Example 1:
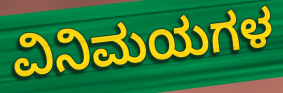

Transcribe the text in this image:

ವಿನಿಮಯಗಳ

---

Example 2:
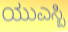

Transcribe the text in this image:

ಯುಎಸ್ಬಿ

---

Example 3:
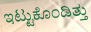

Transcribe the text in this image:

ಇಟ್ಟುಕೊಂಡಿತ್ತು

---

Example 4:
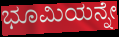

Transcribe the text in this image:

ಭೂಮಿಯನ್ನೇ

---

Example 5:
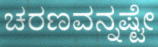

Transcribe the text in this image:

ಚರಣವನ್ನಷ್ಟೇ